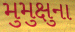
મુમુક્ષુના